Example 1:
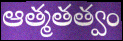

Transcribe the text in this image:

ఆత్మతత్వం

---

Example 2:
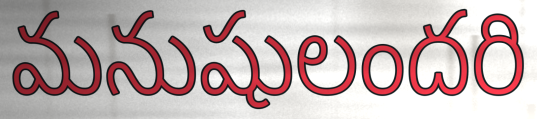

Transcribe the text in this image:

మనుషులందరి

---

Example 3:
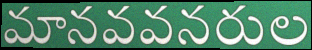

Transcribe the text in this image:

మానవవనరుల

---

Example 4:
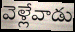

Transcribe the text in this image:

వెళ్లేవాడు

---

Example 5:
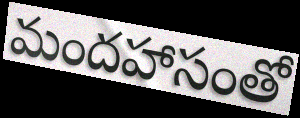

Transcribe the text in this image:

మందహాసంతో